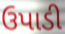
ઉપાડી